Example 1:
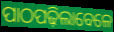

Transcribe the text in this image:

ପାଠପଢ଼ିଲାବେଳେ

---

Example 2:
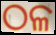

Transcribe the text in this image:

ଠଳ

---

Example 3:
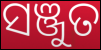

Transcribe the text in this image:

ସଞ୍ଜୁତ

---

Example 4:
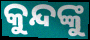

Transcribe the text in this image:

କୁନ୍ଦଙ୍କୁ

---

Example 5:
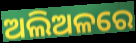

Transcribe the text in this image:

ଅଲିଅଳରେ